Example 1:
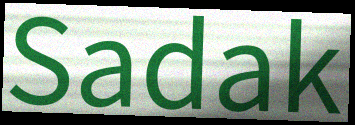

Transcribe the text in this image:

Sadak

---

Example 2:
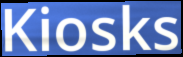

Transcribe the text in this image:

Kiosks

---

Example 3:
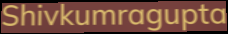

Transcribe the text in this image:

Shivkumragupta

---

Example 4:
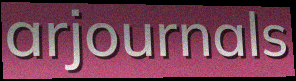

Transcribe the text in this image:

arjournals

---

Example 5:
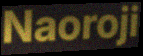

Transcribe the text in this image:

Naoroji